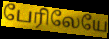
பேரிலேயே